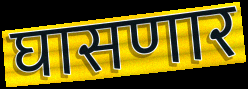
घासणार